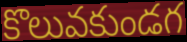
కొలువకుండగ